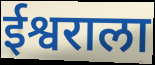
ईश्वराला